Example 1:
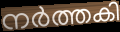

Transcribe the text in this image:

നർത്തകി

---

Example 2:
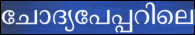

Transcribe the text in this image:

ചോദ്യപേപ്പറിലെ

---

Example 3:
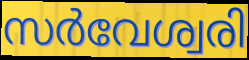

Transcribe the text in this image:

സർവേശ്വരി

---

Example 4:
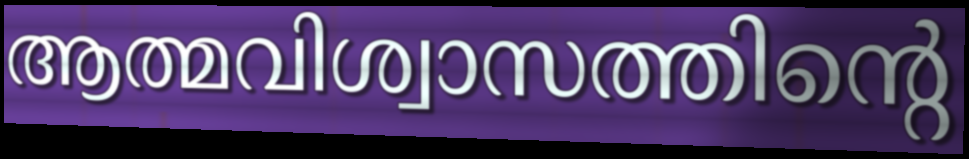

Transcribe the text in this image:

ആത്മവിശ്വാസത്തിന്റെ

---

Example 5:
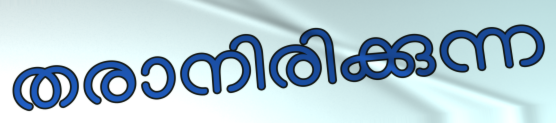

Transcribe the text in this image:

തരാനിരിക്കുന്ന